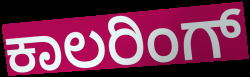
ಕಾಲರಿಂಗ್